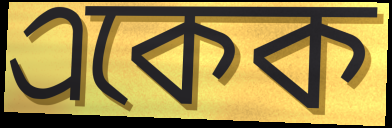
একেক